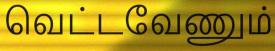
வெட்டவேணும்